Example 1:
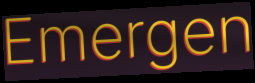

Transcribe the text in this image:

Emergen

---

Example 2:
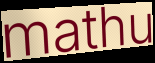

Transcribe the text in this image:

mathu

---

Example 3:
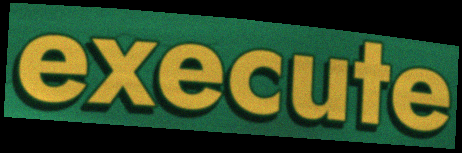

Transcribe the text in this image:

execute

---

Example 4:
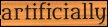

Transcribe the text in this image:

artificially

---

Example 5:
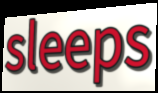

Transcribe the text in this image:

sleeps